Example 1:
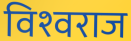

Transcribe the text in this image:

विश्वराज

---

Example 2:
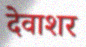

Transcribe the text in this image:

देवाशर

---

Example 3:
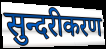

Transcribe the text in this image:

सुन्दरीकरण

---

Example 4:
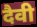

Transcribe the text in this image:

दैवी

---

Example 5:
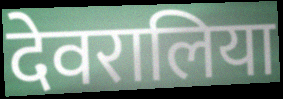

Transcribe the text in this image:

देवरालिया